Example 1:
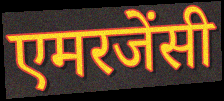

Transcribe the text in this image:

एमरजेंसी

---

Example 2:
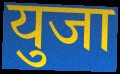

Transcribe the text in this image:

युजा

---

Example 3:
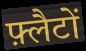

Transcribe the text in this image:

फ़्लैटों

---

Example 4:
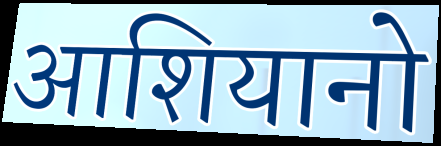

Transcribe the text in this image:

आशियानो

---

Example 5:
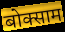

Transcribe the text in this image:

बोक्साम